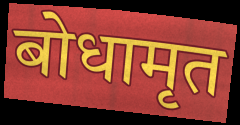
बोधामृत